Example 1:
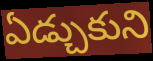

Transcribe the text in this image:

ఏడ్చుకుని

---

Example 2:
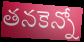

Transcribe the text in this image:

తనకెన్నో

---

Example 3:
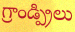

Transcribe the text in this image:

గ్రాండ్ప్రిలు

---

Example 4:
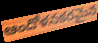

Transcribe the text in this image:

ఆందోళనకరమైన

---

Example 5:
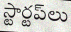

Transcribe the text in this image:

స్టార్టప్‌లు